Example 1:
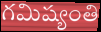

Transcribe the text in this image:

గమిష్యంతి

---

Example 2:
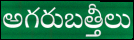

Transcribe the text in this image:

అగరుబత్తీలు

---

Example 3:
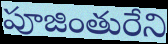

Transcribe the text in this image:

పూజింతురేని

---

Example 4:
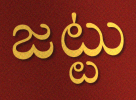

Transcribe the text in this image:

జట్టు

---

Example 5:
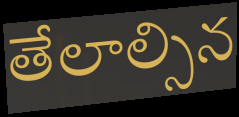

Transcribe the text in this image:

తేలాల్సిన